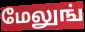
மேலுங்